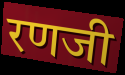
रणजी